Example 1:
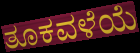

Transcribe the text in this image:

ತೂಕವಳೆಯೆ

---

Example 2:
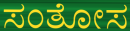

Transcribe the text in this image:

ಸಂತೋಸ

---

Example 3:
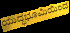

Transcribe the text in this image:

ಯುದ್ಧಭೂಮಿಯಿಂದ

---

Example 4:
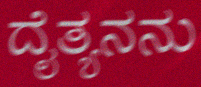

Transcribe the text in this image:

ದೈತ್ಯನನು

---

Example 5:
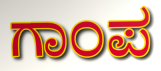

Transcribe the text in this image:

ಗಾಂಪ